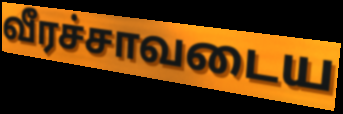
வீரச்சாவடைய